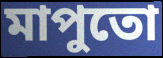
মাপুতো